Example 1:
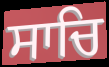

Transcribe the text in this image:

ਸਾਚਿ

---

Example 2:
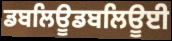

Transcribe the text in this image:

ਡਬਲਿਊਡਬਲਿਊਈ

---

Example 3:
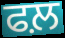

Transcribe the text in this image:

ਫਲ਼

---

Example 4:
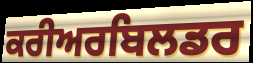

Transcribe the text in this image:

ਕਰੀਅਰਬਿਲਡਰ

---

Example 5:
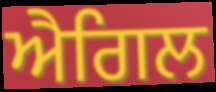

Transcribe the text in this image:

ਐਗਿਲ